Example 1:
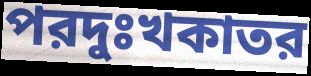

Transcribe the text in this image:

পরদুঃখকাতর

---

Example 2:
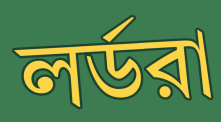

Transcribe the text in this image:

লর্ডরা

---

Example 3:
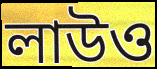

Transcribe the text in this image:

লাউও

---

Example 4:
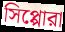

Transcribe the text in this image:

সিপ্পোরা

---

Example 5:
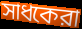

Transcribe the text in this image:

সাধকেরা